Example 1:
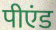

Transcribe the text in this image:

पीएंड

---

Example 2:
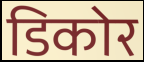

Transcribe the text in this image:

डिकोर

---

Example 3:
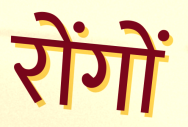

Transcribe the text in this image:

रोंगों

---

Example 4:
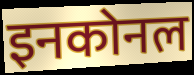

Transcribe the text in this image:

इनकोनल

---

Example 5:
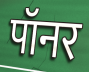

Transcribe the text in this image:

पॉनर